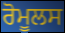
ਰੋਮੂਲਸ